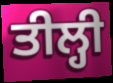
ਤੀਲ੍ਹੀ